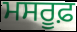
ਮਸਰੂਫ਼